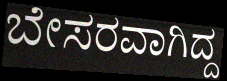
ಬೇಸರವಾಗಿದ್ದ